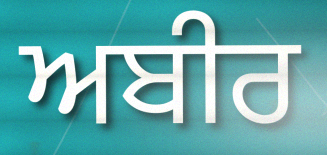
ਅਬੀਰ